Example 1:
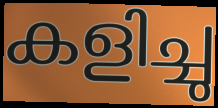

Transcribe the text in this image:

കളിച്ചു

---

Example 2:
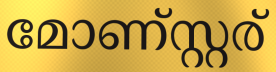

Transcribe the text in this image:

മോണ്സ്റ്റര്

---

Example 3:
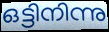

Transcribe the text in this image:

ഒട്ടിനിന്നു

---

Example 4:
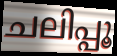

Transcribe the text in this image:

ചലിപ്പൂ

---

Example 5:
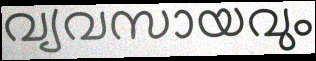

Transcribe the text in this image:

വ്യവസായവും